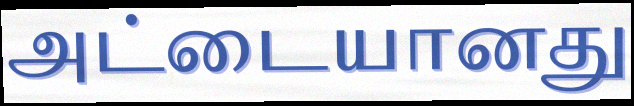
அட்டையானது